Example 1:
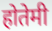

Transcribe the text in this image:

होतेमी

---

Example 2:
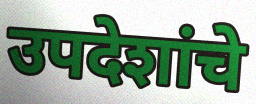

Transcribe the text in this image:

उपदेशांचे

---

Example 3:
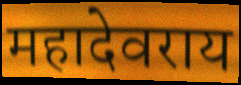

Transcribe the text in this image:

महादेवराय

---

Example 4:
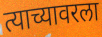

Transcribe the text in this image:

त्याच्यावरला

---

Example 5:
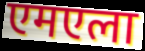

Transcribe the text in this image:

एमएला